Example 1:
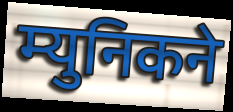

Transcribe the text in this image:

म्युनिकने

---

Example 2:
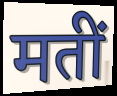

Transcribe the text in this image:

मतीं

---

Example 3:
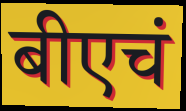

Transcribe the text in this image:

बीएचं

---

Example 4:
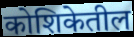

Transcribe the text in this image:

कोशिकेतील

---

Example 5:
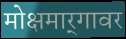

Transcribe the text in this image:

मोक्षमार्गावर